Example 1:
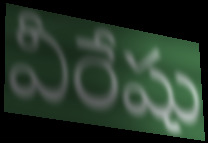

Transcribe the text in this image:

వీరేషు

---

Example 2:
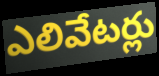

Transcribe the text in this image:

ఎలివేటర్లు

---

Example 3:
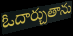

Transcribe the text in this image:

ఓదార్చుతాను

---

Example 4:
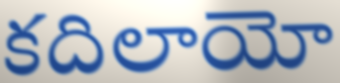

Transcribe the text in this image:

కదిలాయో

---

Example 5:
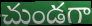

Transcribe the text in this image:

చుండగా